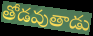
తోడవుతాడు